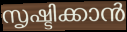
സൃഷ്ടിക്കാൻ